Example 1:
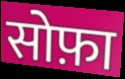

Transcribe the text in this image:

सोफ़ा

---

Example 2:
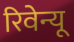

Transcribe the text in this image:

रिवेन्यू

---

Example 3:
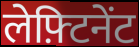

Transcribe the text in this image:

लेफ़्टिनेंट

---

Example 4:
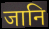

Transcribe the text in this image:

जानि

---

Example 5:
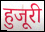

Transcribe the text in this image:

हुजूरी